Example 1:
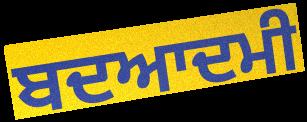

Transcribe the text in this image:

ਬਦਆਦਮੀ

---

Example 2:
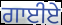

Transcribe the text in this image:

ਗਾਈਏ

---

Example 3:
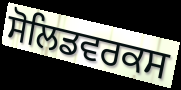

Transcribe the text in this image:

ਸੋਲਿਡਵਰਕਸ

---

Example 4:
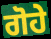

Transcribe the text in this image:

ਗੋਹੇ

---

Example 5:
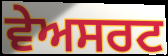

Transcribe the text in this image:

ਵੇਅਸਰਟ